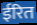
ईरित